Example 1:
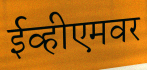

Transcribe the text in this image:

ईव्हीएमवर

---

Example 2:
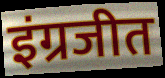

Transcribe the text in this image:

इंग्रजीत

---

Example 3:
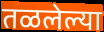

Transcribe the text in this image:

तळलेल्या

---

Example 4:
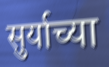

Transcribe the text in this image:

सुर्याच्या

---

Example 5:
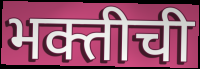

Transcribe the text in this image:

भक्‍तीची